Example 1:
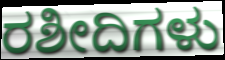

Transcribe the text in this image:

ರಶೀದಿಗಳು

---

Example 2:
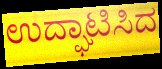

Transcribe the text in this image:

ಉದ್ಘಾಟಿಸಿದ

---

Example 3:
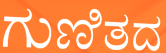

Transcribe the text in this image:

ಗುಣಿತದ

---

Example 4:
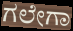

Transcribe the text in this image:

ಗಲೇಗಾ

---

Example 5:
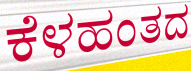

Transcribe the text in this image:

ಕೆಳಹಂತದ